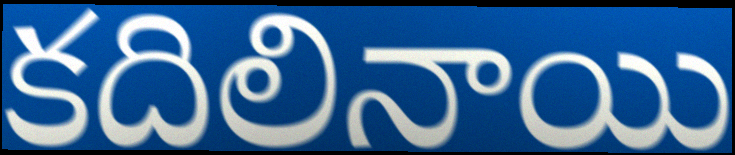
కదిలినాయి